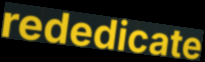
rededicate